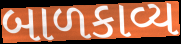
બાળકાવ્ય